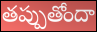
తప్పుతోందా